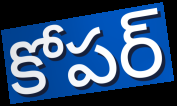
కోపర్